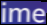
ime